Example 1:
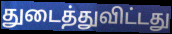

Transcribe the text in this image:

துடைத்துவிட்டது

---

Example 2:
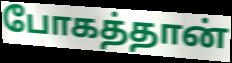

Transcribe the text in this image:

போகத்தான்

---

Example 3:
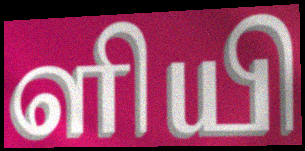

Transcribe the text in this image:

ளியி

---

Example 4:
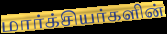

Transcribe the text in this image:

மார்க்சியர்களின்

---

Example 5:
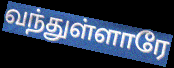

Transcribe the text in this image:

வந்துள்ளாரே